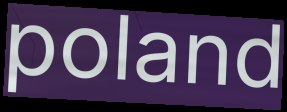
poland